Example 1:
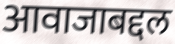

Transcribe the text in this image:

आवाजाबद्दल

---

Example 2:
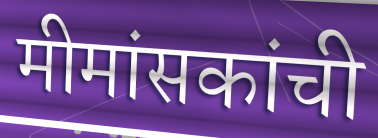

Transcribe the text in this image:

मीमांसकांची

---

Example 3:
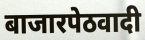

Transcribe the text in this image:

बाजारपेठवादी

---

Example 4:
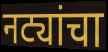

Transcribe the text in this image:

नट्यांचा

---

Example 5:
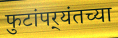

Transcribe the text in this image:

फुटांपर्यंतच्या